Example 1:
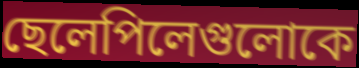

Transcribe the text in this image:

ছেলেপিলেগুলোকে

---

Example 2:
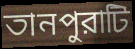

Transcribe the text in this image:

তানপুরাটি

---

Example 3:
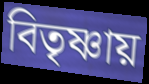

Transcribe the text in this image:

বিতৃষ্ণায়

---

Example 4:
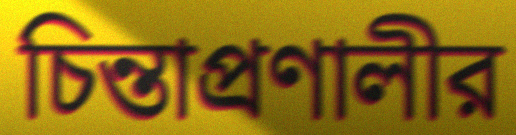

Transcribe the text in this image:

চিন্তাপ্রণালীর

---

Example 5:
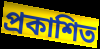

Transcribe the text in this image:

প্রকাশিত